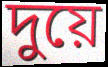
দুয়ে